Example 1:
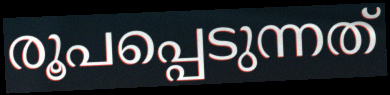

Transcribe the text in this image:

രൂപപ്പെടുന്നത്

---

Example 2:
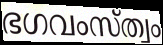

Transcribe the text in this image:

ഭഗവംസ്ത്വം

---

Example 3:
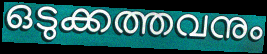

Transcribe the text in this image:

ഒടുക്കത്തവനും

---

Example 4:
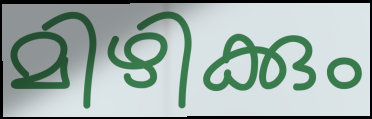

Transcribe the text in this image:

മിഴിക്കും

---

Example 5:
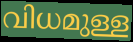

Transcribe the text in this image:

വിധമുള്ള